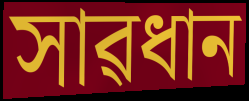
সাৱধান